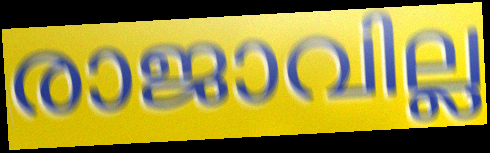
രാജാവില്ല